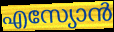
എസ്യോൻ